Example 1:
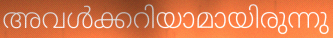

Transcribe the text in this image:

അവൾക്കറിയാമായിരുന്നു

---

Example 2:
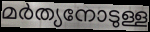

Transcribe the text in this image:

മർത്യനോടുള്ള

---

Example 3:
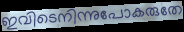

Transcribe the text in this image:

ഇവിടെനിന്നുപോകരുതേ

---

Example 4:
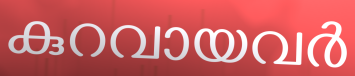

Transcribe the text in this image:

കുറവായവർ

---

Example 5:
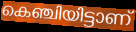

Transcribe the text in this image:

കെഞ്ചിയിട്ടാണ്